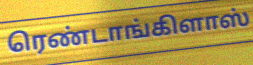
ரெண்டாங்கிளாஸ்